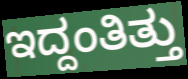
ಇದ್ದಂತಿತ್ತು